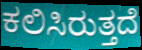
ಕಲಿಸಿರುತ್ತದೆ